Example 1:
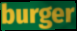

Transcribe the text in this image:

burger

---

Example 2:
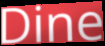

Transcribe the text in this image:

Dine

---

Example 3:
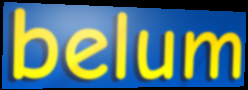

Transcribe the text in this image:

belum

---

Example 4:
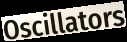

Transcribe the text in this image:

Oscillators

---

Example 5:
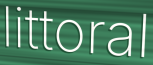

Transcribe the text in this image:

littoral